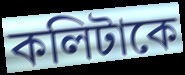
কলিটাকে